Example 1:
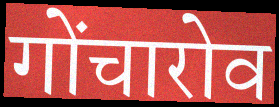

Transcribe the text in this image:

गोंचारोव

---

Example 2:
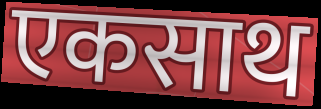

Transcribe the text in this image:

एकसाथ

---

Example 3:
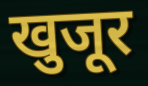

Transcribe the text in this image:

खुजूर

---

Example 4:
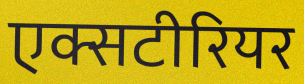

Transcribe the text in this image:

एक्सटीरियर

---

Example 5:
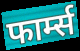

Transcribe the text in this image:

फार्म्स